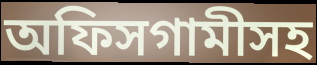
অফিসগামীসহ